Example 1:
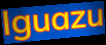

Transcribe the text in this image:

Iguazu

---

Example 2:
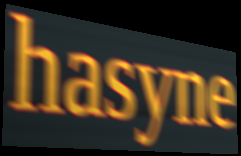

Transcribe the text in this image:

hasyne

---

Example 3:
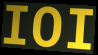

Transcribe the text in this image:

IOI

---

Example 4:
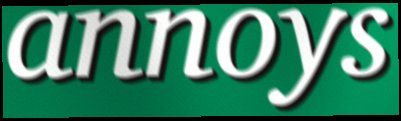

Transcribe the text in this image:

annoys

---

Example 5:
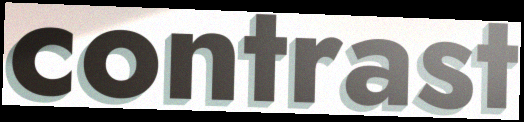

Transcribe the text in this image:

contrast